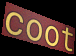
coot